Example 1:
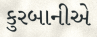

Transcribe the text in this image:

કુરબાનીએ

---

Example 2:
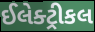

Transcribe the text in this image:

ઈલેક્ટ્રીકલ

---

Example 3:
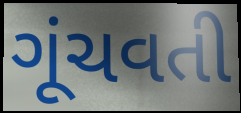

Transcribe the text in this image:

ગૂંચવતી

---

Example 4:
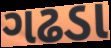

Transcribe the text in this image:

ગઢડા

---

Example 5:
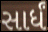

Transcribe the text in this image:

સાર્ધં